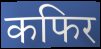
कफिर